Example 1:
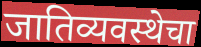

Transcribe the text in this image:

जातिव्यवस्थेचा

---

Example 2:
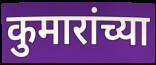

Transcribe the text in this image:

कुमारांच्या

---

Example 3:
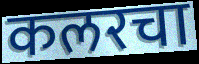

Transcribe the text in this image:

कलरचा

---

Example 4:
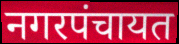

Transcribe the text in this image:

नगरपंचायत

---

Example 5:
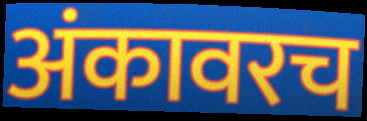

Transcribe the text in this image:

अंकावरच